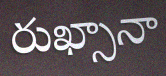
రుఖ్సానా